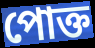
পোক্ত